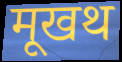
मूखथ